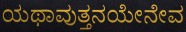
ಯಥಾವುತ್ತನಯೇನೇವ